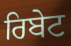
ਰਿਬੇਟ